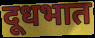
दूधभात